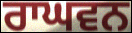
ਰਾਘਵਨ